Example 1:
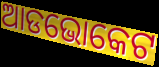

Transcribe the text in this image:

ଆଡଭୋକେଟ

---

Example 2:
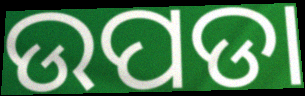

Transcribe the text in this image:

ଉପଡା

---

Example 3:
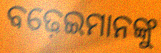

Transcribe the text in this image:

ବଢ଼େଇମାନଙ୍କୁ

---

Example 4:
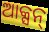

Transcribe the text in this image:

ଆକ୍ସନ୍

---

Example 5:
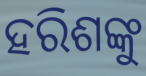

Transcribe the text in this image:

ହରିଶଙ୍କୁ